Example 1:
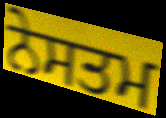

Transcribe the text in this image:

ਨੇਸਤਮ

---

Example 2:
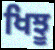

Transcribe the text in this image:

ਖਿਝੂ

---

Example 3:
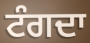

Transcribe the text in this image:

ਟੰਗਦਾ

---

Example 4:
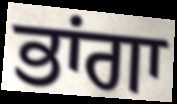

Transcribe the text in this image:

ਭਾਂਗਾ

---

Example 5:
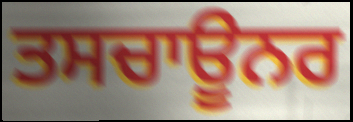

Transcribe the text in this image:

ਤਸਚਾਊਨਰ